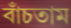
বাঁচতাম